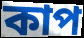
কাপ